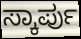
ಸ್ಕಾರ್ಪು